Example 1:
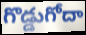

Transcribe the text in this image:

గొడ్డుగోదా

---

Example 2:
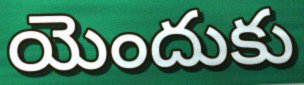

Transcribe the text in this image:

యెందుకు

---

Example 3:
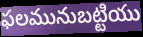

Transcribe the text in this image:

ఫలమునుబట్టియు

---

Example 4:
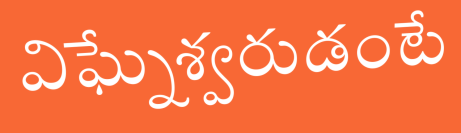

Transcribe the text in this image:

విఘ్నేశ్వరుడంటే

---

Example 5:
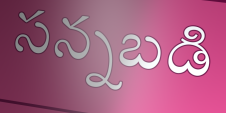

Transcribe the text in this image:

సన్నబడి